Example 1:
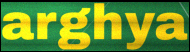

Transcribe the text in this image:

arghya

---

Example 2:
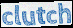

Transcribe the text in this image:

clutch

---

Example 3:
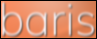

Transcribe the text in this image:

baris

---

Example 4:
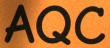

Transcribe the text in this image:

AQC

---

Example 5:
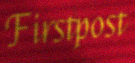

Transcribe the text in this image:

Firstpost